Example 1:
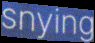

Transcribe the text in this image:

snying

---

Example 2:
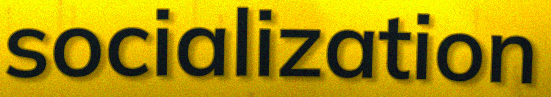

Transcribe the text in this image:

socialization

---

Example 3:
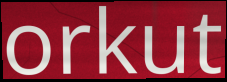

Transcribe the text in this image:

orkut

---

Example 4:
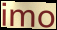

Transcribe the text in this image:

imo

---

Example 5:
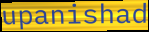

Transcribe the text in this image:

upanishad